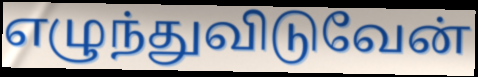
எழுந்துவிடுவேன்